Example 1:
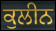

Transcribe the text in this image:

ਕੁਲੀਨ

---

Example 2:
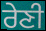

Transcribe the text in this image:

ਰੇਣੀ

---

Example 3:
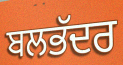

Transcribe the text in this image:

ਬਲਭੱਦਰ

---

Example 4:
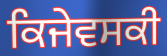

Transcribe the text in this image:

ਕਿਜੇਵਸਕੀ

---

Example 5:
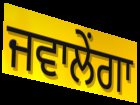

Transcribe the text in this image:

ਜਵਾਲੇਂਗਾ